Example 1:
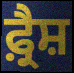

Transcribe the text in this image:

ਫ਼੍ਰੈਸ਼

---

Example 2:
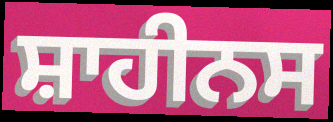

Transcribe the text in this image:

ਸ਼ਾਹੀਨਸ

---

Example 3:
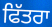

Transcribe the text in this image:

ਫਿੱਤਰਾ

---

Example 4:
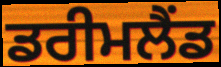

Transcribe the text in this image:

ਡਰੀਮਲੈਂਡ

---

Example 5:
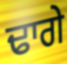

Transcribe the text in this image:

ਢਾਗੇ